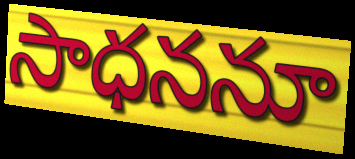
సాధననూ